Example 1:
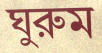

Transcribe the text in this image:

ঘুরুম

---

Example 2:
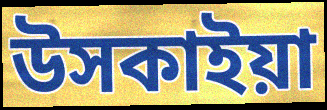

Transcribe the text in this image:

উসকাইয়া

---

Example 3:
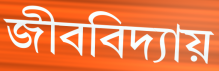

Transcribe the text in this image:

জীববিদ্যায়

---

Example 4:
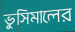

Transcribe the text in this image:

ভুসিমালের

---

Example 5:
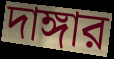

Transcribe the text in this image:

দাঙ্গার